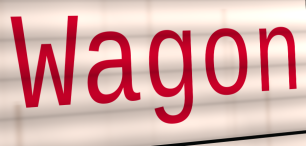
Wagon